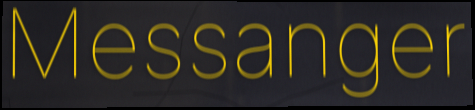
Messanger